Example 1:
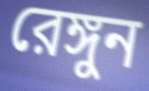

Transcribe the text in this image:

রেঙ্গুন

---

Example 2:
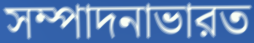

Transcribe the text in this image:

সম্পাদনাভারত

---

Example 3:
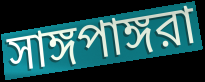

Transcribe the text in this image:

সাঙ্গপাঙ্গরা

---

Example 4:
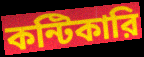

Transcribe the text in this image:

কন্টিকারি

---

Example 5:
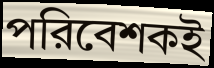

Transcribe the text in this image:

পরিবেশকই